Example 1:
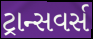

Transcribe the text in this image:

ટ્રાન્સવર્સ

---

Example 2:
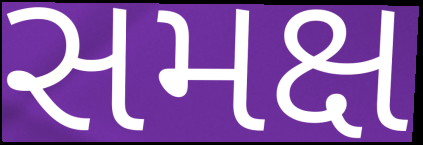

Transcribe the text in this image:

સમક્ષ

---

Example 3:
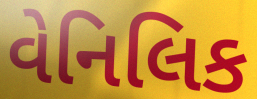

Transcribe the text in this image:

વેનિલિક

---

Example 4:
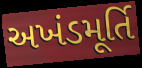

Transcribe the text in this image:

અખંડમૂર્તિ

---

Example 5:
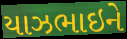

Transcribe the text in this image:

યાઝભાઇને